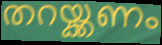
തറയ്ക്കണം